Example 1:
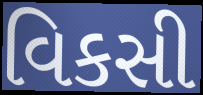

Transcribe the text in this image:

વિકસી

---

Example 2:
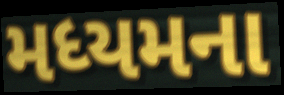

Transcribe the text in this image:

મધ્યમના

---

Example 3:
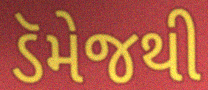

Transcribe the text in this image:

ડૅમેજથી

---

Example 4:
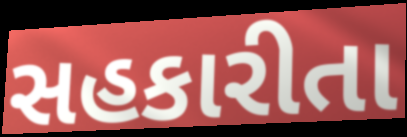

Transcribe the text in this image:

સહકારીતા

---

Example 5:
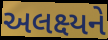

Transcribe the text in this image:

અલક્ષ્યને